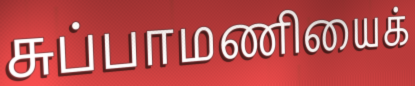
சுப்பாமணியைக்